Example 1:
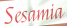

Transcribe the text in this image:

Sesamia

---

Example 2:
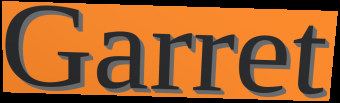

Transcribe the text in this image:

Garret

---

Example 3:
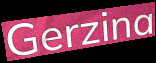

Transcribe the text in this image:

Gerzina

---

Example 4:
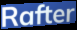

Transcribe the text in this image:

Rafter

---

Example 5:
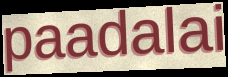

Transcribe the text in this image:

paadalai